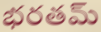
భరతమ్